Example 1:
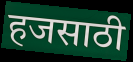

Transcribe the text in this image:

हजसाठी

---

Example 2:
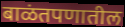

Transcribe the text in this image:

बाळंतपणातील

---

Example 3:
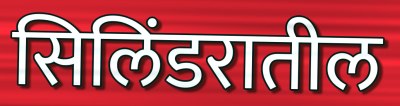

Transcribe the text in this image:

सिलिंडरातील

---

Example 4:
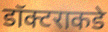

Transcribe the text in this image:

डॉक्टराकडे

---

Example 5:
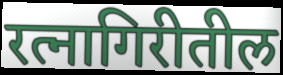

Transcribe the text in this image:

रत्नागिरीतील